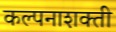
कल्पनाशक्ती